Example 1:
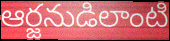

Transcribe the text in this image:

ఆర్జనుడిలాంటి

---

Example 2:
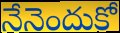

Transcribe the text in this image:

నేనెందుకో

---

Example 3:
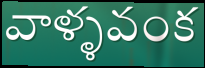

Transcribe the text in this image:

వాళ్ళవంక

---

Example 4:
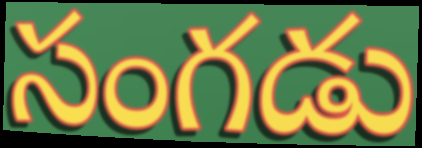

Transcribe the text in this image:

సంగడు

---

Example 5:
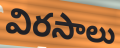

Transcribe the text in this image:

విరసాలు